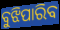
ବୁଝିପାରିବ